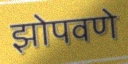
झोपवणे